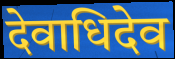
देवाधिदेव